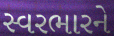
સ્વરભારને